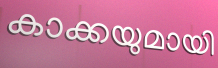
കാക്കയുമായി